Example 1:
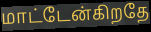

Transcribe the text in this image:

மாட்டேன்கிறதே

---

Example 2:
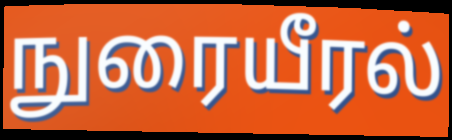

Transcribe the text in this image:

நுரையீரல்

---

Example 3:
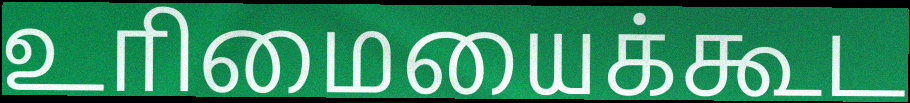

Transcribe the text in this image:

உரிமையைக்கூட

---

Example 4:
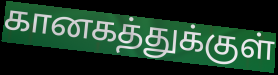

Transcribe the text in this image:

கானகத்துக்குள்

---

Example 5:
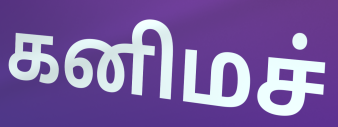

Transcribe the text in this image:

கனிமச்